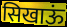
सिखाऊं